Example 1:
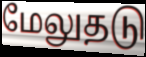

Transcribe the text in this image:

மேலுதடு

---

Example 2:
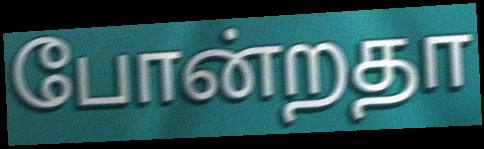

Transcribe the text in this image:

போன்றதா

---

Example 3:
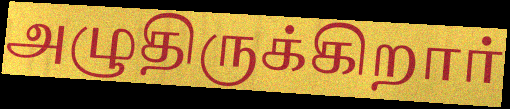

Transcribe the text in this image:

அழுதிருக்கிறார்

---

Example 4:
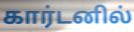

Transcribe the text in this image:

கார்டனில்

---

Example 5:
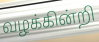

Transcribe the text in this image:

வழக்கின்றி